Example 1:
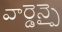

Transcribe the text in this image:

వార్డెన్పై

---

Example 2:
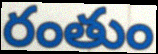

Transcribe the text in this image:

రంతుం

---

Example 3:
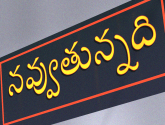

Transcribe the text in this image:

నవ్వుతున్నది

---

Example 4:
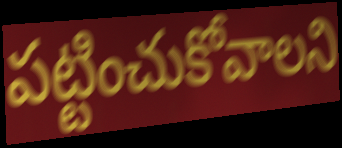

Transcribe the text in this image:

పట్టించుకోవాలని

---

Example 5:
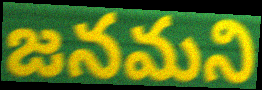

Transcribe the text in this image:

జనమని